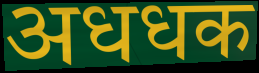
अधधक